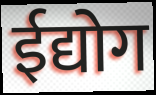
ईद्योग